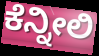
ಕೆನ್ನೀಲಿ